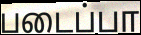
படைப்பா